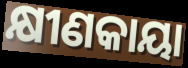
କ୍ଷୀଣକାୟା